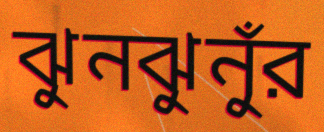
ঝুনঝুনুঁর